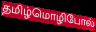
தமிழ்மொழிபோல்